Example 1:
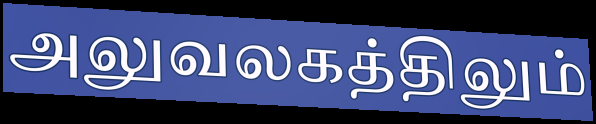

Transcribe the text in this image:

அலுவலகத்திலும்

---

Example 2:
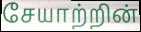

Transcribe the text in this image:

சேயாற்றின்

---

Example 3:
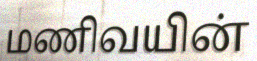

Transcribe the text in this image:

மணிவயின்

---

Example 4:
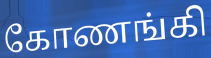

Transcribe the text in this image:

கோணங்கி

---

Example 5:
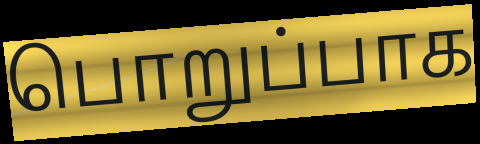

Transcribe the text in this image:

பொறுப்பாக